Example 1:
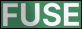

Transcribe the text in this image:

FUSE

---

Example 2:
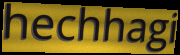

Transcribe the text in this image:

hechhagi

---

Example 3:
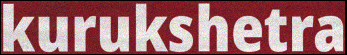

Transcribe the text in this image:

kurukshetra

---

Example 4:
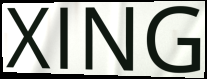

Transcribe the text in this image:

XING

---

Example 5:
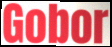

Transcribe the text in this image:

Gobor